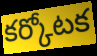
కర్కోటక